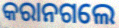
କରାନଗଲେ